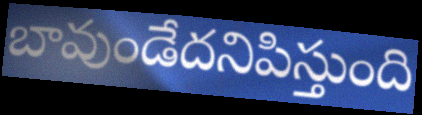
బావుండేదనిపిస్తుంది